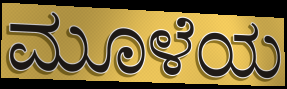
ಮೂಳೆಯ